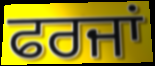
ਫਰਜਾਂ